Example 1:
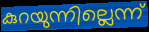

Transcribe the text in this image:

കുറയുന്നില്ലെന്ന്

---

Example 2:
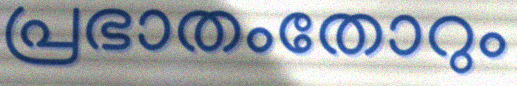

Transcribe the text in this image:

പ്രഭാതംതോറും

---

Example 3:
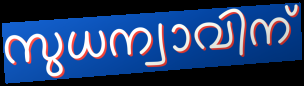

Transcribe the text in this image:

സുധന്വാവിന്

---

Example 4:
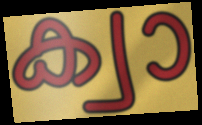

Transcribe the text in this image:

ക്വാ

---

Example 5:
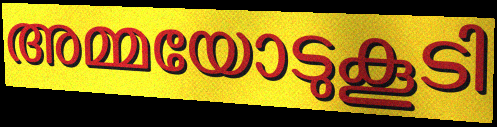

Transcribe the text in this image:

അമ്മയോടുകൂടി